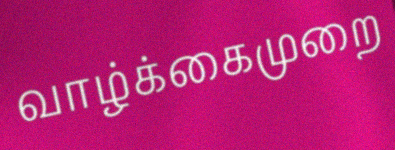
வாழ்க்கைமுறை